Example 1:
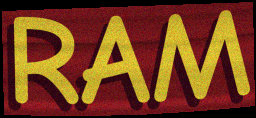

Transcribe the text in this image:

RAM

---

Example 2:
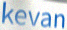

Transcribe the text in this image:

kevan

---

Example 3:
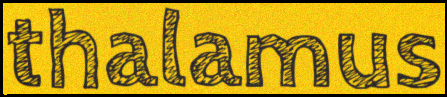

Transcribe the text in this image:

thalamus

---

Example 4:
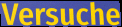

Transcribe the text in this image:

Versuche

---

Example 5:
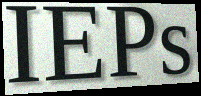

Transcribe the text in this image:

IEPs